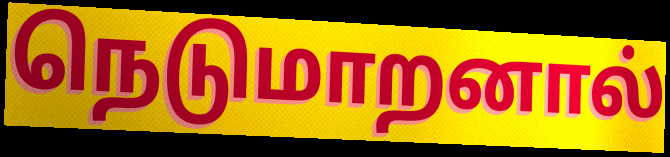
நெடுமாறனால்